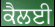
ਕੈਲਈ